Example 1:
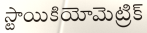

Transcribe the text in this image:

స్టాయికియోమెట్రిక్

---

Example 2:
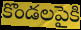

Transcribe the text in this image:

కొండలపైకి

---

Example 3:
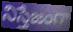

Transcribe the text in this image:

నిస్తేజంగా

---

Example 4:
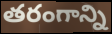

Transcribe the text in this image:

తరంగాన్ని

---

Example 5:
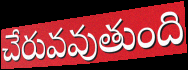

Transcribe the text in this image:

చేరువవుతుంది